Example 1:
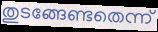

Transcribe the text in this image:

തുടങ്ങേണ്ടതെന്ന്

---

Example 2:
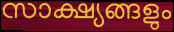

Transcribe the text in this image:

സാക്ഷ്യങ്ങളും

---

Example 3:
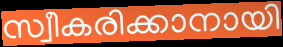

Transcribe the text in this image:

സ്വീകരിക്കാനായി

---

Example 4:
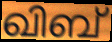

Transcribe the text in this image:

ഖിബ്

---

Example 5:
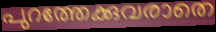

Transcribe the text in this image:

പുറത്തേക്കുവരാതെ